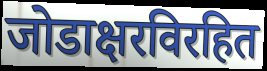
जोडाक्षरविरहित